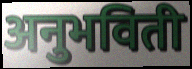
अनुभविती